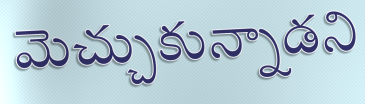
మెచ్చుకున్నాడని